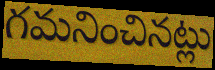
గమనించినట్లు